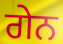
ਗੇਨ